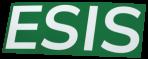
ESIS